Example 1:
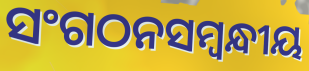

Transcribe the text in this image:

ସଂଗଠନସମ୍ବନ୍ଧୀୟ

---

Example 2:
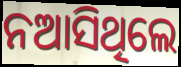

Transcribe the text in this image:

ନଆସିଥିଲେ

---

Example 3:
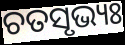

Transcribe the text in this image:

ଚତସୃଭ୍ୟଃ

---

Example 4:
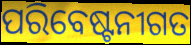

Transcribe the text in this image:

ପରିବେଷ୍ଟନୀଗତ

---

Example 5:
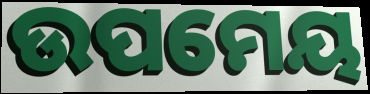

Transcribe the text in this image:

ଉପମେୟ